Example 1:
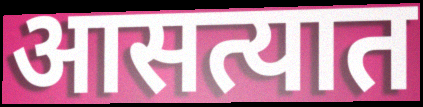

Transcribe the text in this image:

आसत्यात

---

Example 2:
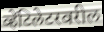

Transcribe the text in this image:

व्हेंटिलेटरवरील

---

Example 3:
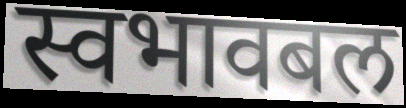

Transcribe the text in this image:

स्वभावबल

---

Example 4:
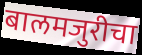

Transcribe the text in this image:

बालमजुरीचा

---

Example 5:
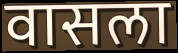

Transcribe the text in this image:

वासला